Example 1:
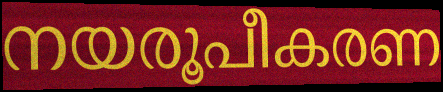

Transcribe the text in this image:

നയരൂപീകരണ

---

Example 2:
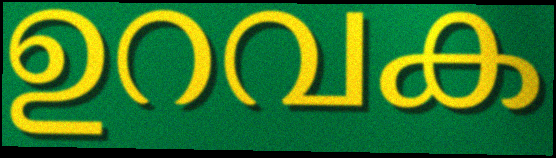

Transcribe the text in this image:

ഉറവക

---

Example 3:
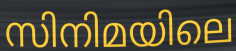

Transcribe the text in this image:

സിനിമയിലെ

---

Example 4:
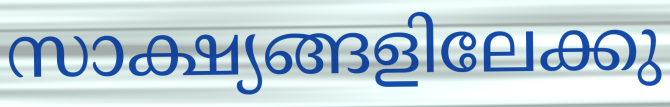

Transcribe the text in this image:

സാക്ഷ്യങ്ങളിലേക്കു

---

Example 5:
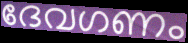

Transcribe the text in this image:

ദേവഗണം